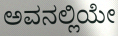
ಅವನಲ್ಲಿಯೇ